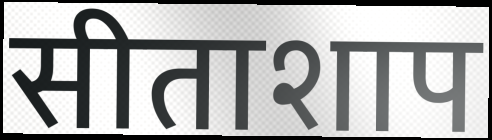
सीताशाप